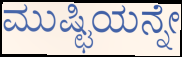
ಮುಷ್ಟಿಯನ್ನೇ